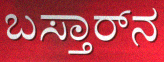
ಬಸ್ತಾರ್‌ನ